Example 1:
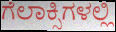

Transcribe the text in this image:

ಗೆಲಾಕ್ಸಿಗಳಲ್ಲಿ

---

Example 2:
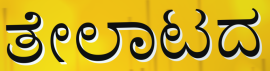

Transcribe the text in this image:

ತೇಲಾಟದ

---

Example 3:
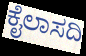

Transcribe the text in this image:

ಕೈಲಾಸದಿ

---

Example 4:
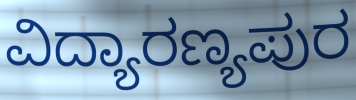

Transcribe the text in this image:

ವಿದ್ಯಾರಣ್ಯಪುರ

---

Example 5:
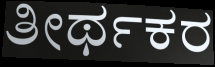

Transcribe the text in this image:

ತೀರ್ಥಕರ